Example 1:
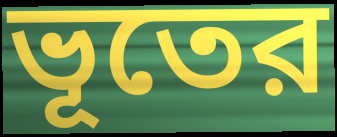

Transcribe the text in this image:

ভূতের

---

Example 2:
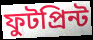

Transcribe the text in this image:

ফুটপ্রিন্ট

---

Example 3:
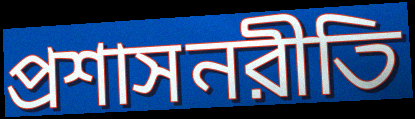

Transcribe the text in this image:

প্রশাসনরীতি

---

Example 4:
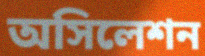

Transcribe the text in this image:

অসিলেশন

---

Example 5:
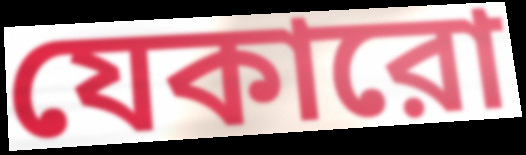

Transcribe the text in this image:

যেকারো